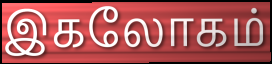
இகலோகம்